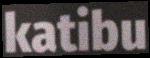
katibu